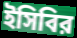
ইসিবির